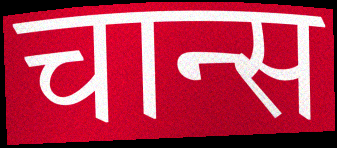
चान्स